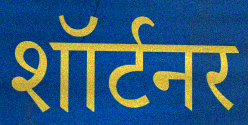
शॉर्टनर